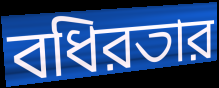
বধিরতার